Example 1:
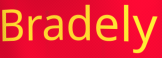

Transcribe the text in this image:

Bradely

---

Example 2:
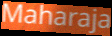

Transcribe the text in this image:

Maharaja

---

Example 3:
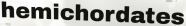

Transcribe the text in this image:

hemichordates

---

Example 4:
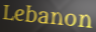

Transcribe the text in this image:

Lebanon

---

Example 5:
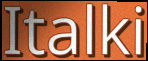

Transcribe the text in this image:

Italki